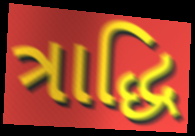
ત્રાદ્ધિ